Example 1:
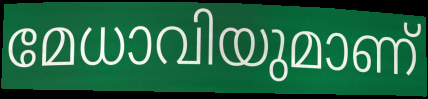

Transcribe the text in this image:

മേധാവിയുമാണ്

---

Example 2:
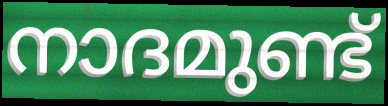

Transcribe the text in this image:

നാദമുണ്ട്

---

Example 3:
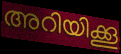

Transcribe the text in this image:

അറിയിക്കൂ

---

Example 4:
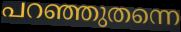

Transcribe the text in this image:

പറഞ്ഞുതന്നെ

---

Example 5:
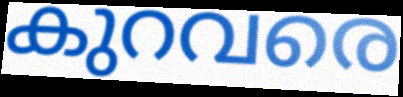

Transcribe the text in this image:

കുറവരെ